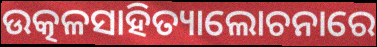
ଉତ୍କଳସାହିତ୍ୟାଲୋଚନାରେ